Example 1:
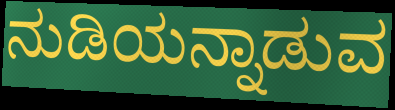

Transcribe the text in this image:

ನುಡಿಯನ್ನಾಡುವ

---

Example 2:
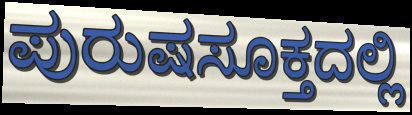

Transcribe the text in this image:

ಪುರುಷಸೂಕ್ತದಲ್ಲಿ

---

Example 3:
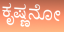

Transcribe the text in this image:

ಕೃಷ್ಣನೋ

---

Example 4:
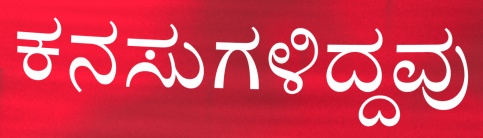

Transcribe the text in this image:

ಕನಸುಗಳಿದ್ದವು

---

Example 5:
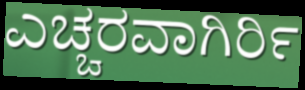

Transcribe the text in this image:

ಎಚ್ಚರವಾಗಿರ್ರಿ